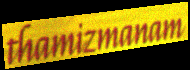
thamizmanam